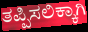
ತಪ್ಪಿಸಲಿಕ್ಕಾಗಿ